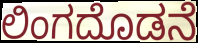
ಲಿಂಗದೊಡನೆ